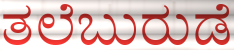
ತಲೆಬುರುಡೆ